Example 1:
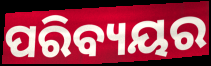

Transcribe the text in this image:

ପରିବ୍ୟୟର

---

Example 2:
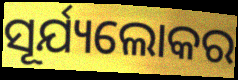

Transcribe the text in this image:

ସୂର୍ଯ୍ୟଲୋକର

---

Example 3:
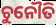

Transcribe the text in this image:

ଚୁନୌତି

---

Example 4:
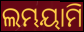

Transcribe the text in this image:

ଲମ୍ଭୟାମି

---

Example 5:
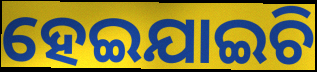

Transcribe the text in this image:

ହେଇଯାଇଚି